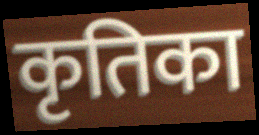
कृतिका